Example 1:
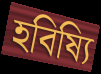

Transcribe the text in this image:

হবিষ্যি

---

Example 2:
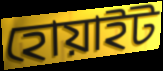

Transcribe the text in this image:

হোয়াইট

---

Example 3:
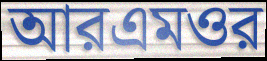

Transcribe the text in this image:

আরএমওর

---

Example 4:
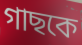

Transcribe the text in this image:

গাছকে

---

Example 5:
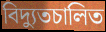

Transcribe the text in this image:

বিদ্যুতচালিত